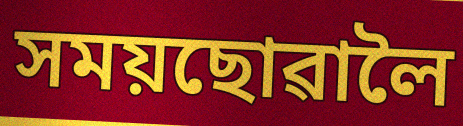
সময়ছোৱালৈ